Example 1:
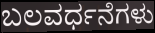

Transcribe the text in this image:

ಬಲವರ್ಧನೆಗಳು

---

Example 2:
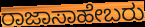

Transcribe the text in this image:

ರಾಜಾಸಾಹೇಬರು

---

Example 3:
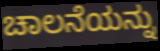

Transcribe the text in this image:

ಚಾಲನೆಯನ್ನು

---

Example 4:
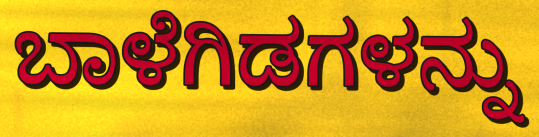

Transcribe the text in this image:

ಬಾಳೆಗಿಡಗಳನ್ನು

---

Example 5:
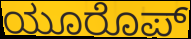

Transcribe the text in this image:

ಯೂರೊಪ್